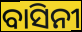
ବାସିନୀ